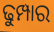
ଢୁମ୍ପାର